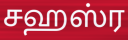
சஹஸ்ர